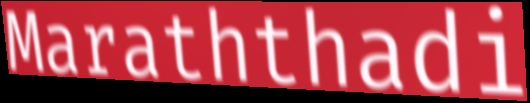
Maraththadi